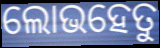
ଲୋଭହେତୁ